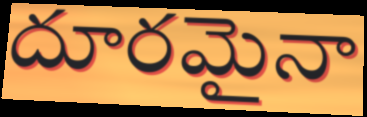
దూరమైనా